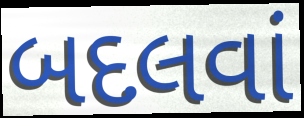
બદલવાં